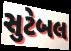
સુટેબલ